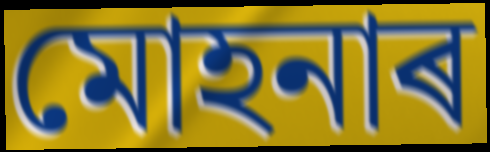
মোহনাৰ